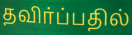
தவிர்ப்பதில்